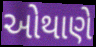
ઓથાણે